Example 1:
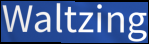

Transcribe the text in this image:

Waltzing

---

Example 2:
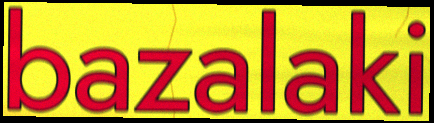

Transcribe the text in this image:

bazalaki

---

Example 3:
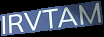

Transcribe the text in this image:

IRVTAM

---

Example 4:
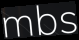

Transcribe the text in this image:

mbs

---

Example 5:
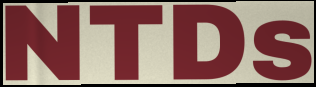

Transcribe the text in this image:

NTDs